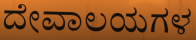
ದೇವಾಲಯಗಳ